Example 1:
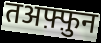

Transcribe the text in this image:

तअफ़्फ़ुन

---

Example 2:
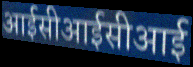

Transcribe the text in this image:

आईसीआईसीआई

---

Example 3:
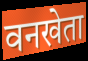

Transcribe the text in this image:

वनखेता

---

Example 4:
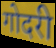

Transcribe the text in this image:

गोदरी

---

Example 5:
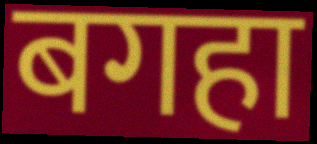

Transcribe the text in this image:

बगहा